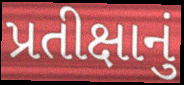
પ્રતીક્ષાનું